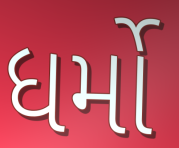
ધર્મો